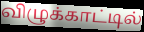
விழுக்காட்டில்